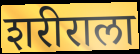
शरीराला